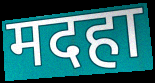
मदहा